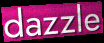
dazzle